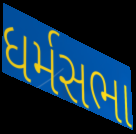
ધર્મસભા